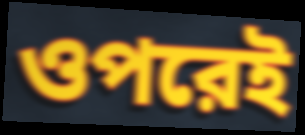
ওপরেই